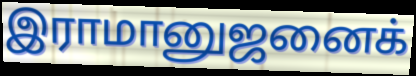
இராமானுஜனைக்